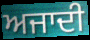
ਅਜਾਦੀ